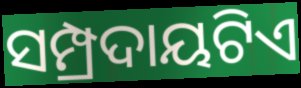
ସମ୍ପ୍ରଦାୟଟିଏ